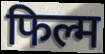
फिल्म